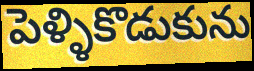
పెళ్ళికొడుకును